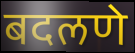
बदलणे